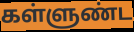
கள்ளுண்ட